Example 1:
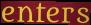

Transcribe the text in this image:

enters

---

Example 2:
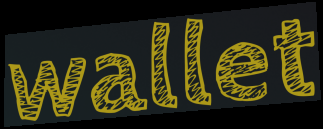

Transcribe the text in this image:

wallet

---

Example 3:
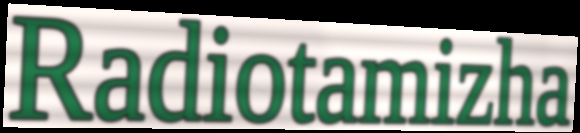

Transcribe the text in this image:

Radiotamizha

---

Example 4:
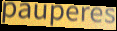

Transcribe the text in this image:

pauperes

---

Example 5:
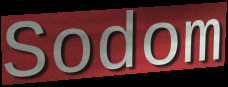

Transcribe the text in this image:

Sodom